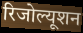
रिजोल्‍यूशन